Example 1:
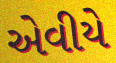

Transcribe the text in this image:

એવીયે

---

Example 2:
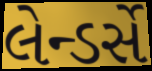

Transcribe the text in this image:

લેન્ડર્સે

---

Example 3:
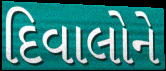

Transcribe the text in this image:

દિવાલોને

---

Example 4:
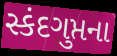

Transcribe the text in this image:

સ્કંદગુપ્તના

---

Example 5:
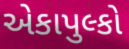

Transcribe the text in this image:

એકાપુલ્કો